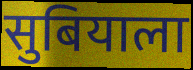
सुबियाला